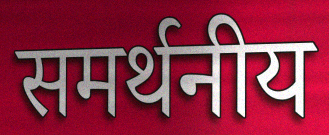
समर्थनीय